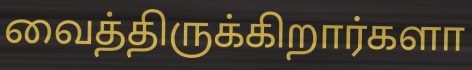
வைத்திருக்கிறார்களா